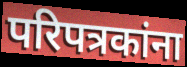
परिपत्रकांना